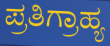
ಪ್ರತಿಗ್ರಾಹ್ಯ